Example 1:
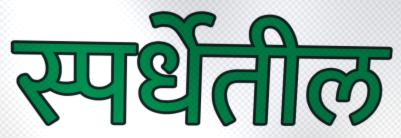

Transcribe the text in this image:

स्पर्धेतील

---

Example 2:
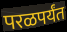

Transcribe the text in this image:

परळपर्यंत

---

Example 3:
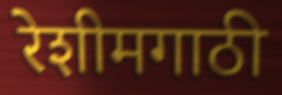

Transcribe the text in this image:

रेशीमगाठी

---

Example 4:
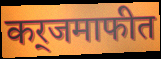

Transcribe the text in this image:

कर्जमाफीत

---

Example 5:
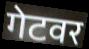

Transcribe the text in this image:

गेटवर